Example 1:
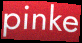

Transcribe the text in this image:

pinke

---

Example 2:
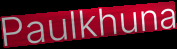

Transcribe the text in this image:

Paulkhuna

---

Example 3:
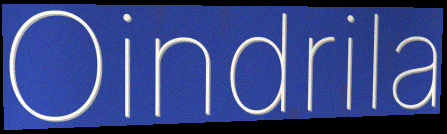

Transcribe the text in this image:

Oindrila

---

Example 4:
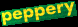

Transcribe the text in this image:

peppery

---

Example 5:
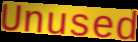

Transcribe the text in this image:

Unused